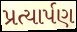
પ્રત્યાર્પણ